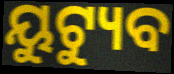
ୟୁଟ୍ୟୁବ